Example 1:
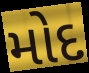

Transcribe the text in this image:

મોદ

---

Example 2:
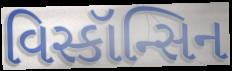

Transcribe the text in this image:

વિસ્કૉન્સિન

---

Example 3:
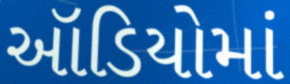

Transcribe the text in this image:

ઑડિયોમાં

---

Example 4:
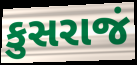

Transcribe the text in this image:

કુસરાજં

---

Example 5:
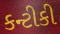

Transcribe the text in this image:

કન્ટીકી